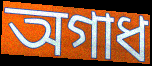
অগাধ